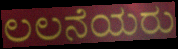
ಲಲನೆಯರು